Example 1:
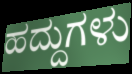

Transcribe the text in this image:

ಹದ್ದುಗಳು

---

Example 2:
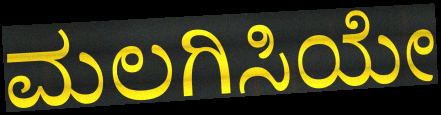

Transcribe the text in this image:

ಮಲಗಿಸಿಯೇ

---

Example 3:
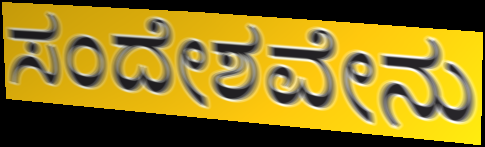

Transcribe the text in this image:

ಸಂದೇಶವೇನು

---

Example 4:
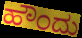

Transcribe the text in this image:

ಹೌಂದು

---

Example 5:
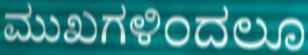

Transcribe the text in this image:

ಮುಖಗಳಿಂದಲೂ